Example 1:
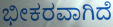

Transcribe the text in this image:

ಭೀಕರವಾಗಿದೆ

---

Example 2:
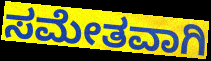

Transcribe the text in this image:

ಸಮೇತವಾಗಿ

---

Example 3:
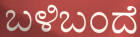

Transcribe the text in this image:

ಬಳಿಬಂದೆ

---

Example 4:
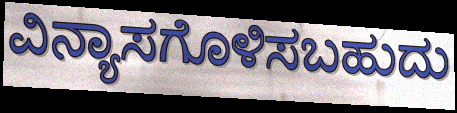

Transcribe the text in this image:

ವಿನ್ಯಾಸಗೊಳಿಸಬಹುದು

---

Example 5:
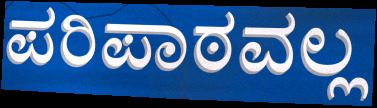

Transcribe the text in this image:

ಪರಿಪಾಠವಲ್ಲ